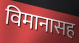
विमानासह